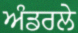
ਅੰਡਰਲੇ